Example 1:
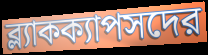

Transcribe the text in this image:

ব্ল্যাকক্যাপসদের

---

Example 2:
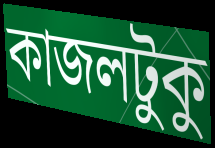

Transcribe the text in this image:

কাজলটুকু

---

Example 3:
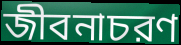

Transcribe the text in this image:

জীবনাচরণ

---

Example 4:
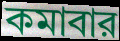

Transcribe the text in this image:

কমাবার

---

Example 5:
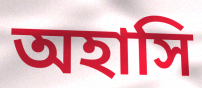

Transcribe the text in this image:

অহাসি